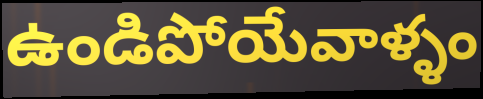
ఉండిపోయేవాళ్ళం